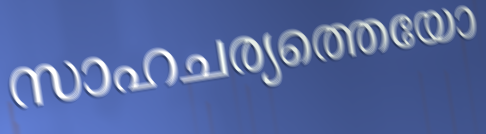
സാഹചര്യത്തെയോ